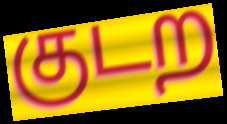
குடற